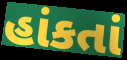
હાંકતાં